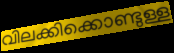
വിലക്കിക്കൊണ്ടുള്ള